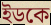
ইডকে